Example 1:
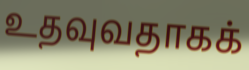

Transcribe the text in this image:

உதவுவதாகக்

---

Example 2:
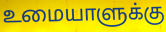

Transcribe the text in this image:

உமையாளுக்கு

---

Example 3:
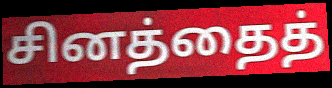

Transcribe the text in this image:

சினத்தைத்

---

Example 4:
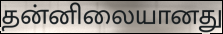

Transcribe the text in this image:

தன்னிலையானது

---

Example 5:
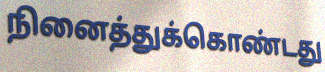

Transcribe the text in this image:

நினைத்துக்கொண்டது